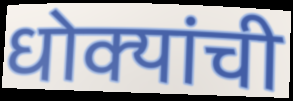
धोक्यांची